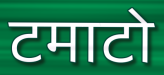
टमाटो